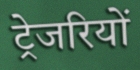
ट्रेजरियों